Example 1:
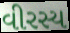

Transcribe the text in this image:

વીરસ્ય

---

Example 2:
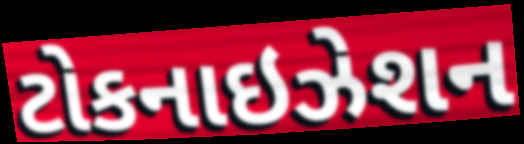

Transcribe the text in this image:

ટોકનાઇઝેશન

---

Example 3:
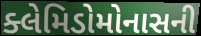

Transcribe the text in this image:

ક્લેમિડોમોનાસની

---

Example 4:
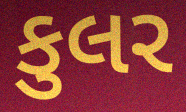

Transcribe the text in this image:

કુલર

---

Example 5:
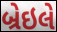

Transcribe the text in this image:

બ્રેઇલે